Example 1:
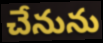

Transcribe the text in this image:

చేనును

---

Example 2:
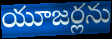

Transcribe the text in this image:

యూజర్లను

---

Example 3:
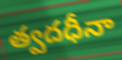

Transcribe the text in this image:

త్వదధీనా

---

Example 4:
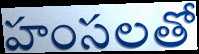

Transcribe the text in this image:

హంసలతో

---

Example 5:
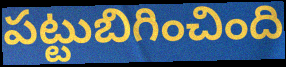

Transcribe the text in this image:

పట్టుబిగించింది